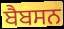
ਬੈਬਸਨ